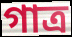
গাত্র